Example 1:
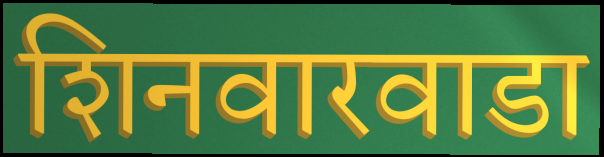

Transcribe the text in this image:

शिनवारवाडा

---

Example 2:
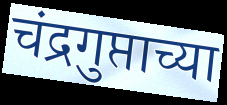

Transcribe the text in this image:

चंद्रगुप्ताच्या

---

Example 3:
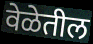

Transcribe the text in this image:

वेळेतील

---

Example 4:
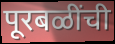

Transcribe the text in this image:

पूरबळींची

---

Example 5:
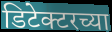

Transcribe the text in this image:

डिटेक्टरच्या